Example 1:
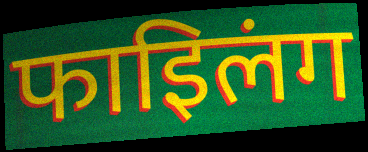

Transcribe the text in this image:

फाइिलंग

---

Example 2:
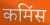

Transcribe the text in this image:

कमिंस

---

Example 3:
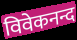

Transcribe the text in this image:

विवेकनन्द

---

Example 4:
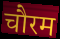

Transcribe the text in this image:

चौरम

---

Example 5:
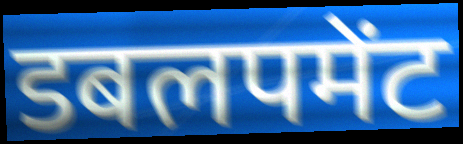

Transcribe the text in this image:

डबलपमेंट